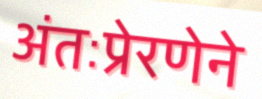
अंतःप्रेरणेने